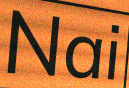
Nai